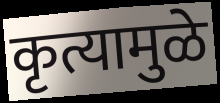
कृत्यामुळे